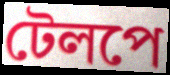
টেলপে